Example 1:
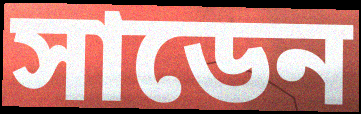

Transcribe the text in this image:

সাডেন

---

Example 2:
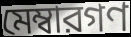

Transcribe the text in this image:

মেম্বারগণ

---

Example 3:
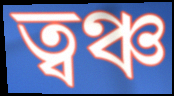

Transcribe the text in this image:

ত্বঞ্চ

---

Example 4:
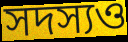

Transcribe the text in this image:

সদস্যও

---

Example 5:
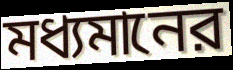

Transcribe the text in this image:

মধ্যমানের